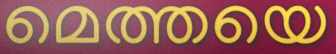
മെത്തയെ